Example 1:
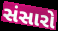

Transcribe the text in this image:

સંસારો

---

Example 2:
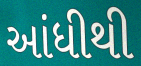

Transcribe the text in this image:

આંધીથી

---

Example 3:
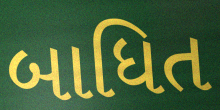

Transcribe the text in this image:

બાધિત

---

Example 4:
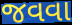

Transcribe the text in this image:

જવવા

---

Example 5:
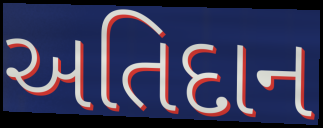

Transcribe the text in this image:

અતિદાન